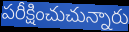
పరీక్షించుచున్నారు